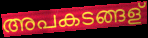
അപകടങ്ങള്